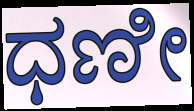
ಧಣೀ